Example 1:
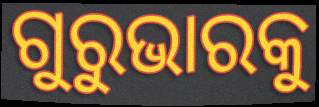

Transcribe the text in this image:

ଗୁରୁଭାରକୁ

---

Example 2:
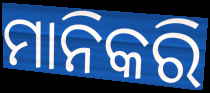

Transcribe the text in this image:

ମାନିକରି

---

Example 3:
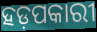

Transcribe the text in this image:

ହଡ଼ପକାରୀ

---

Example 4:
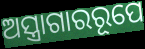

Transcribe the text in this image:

ଅସ୍ତ୍ରାଗାରରୂପେ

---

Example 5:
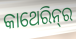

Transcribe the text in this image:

କାଥେରିନ୍‌ର